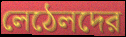
লেঠেলদের